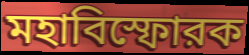
মহাবিস্ফোরক